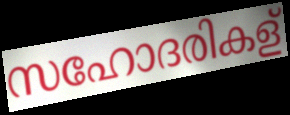
സഹോദരികള്